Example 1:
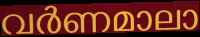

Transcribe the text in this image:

വർണമാലാ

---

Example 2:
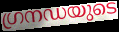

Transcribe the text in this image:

ഗ്രനഡയുടെ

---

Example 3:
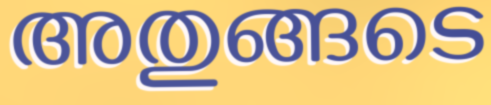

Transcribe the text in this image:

അതുങ്ങടെ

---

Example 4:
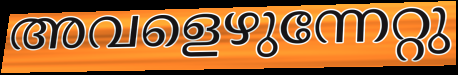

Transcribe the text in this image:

അവളെഴുന്നേറ്റു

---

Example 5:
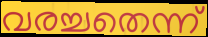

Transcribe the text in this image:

വരച്ചതെന്ന്